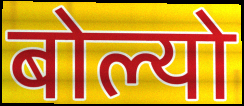
बोल्यो